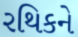
રથિકને